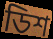
ডিশ